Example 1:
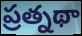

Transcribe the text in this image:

ప్రత్నథా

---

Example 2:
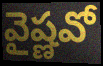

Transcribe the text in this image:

వైష్ణవో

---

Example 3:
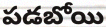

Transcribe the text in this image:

పడబోయి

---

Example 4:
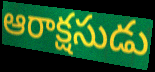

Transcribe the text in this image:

ఆరాక్షసుడు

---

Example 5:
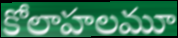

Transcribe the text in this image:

కోలాహలమూ